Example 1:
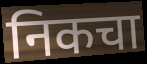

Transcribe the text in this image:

निकचा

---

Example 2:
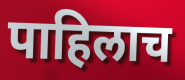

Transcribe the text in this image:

पाहिलाच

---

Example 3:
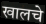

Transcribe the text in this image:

खालचे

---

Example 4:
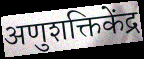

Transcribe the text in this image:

अणुशक्तिकेंद्र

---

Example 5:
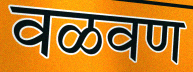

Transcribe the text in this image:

वळवण